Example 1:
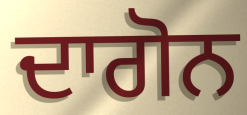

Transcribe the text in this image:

ਦਾਗੋਨ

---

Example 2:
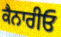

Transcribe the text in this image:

ਕੈਨਾਰੀਓ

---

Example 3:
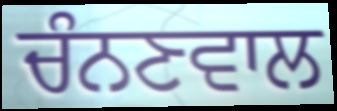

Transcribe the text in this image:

ਚੰਨਣਵਾਲ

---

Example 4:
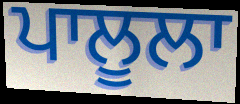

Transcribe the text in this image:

ਪਾਲੂਲਾ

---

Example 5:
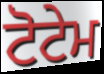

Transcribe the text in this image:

ਟੋਟੇਮ